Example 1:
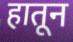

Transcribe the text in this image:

हातून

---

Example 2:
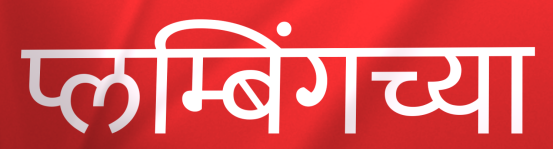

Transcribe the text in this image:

प्लम्बिंगच्या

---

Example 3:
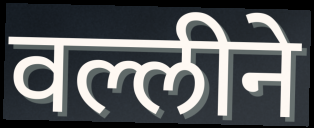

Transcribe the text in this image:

वल्लीने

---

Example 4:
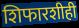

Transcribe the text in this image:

शिफारशीही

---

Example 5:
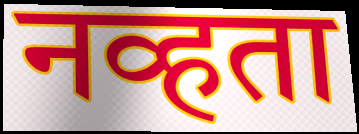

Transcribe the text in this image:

नव्हता